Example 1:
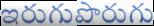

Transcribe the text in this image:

ఇరుగుపొరుగు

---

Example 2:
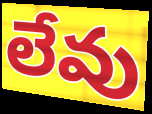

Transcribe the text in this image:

లేవు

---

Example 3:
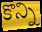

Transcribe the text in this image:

కొన్ని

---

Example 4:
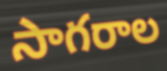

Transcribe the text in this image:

సాగరాల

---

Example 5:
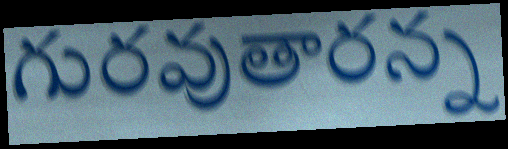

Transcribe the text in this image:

గురవుతారన్న